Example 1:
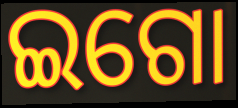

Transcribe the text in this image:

ଇଗୋ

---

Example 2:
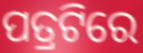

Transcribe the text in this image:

ପତ୍ରଟିରେ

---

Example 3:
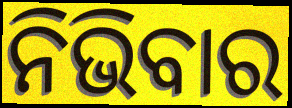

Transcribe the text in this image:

ନିଭିବାର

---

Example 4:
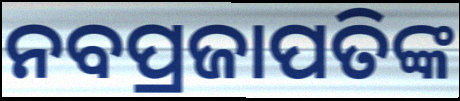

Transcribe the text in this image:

ନବପ୍ରଜାପତିଙ୍କ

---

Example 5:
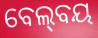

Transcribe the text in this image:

ବେଲ୍‍ବୟ